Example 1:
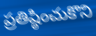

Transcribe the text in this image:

ప్రతిష్ఠించుకొని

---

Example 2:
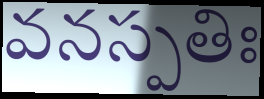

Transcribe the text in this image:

వనస్పతిః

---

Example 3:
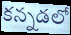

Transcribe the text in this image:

కన్నడలో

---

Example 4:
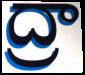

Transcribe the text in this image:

ద్రా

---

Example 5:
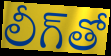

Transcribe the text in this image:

లీగ్‌తో